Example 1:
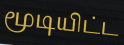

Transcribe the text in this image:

மூடியிட்ட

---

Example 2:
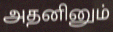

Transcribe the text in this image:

அதனினும்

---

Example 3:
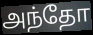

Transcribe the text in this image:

அந்தோ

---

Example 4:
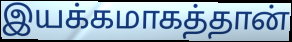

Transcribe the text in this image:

இயக்கமாகத்தான்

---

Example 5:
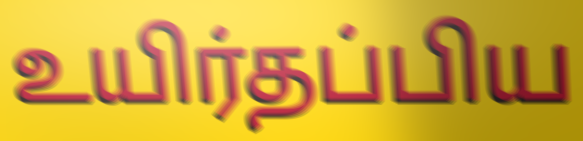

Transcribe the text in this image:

உயிர்தப்பிய